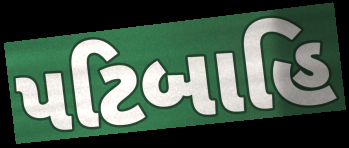
પટિબાહિ